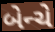
બેન્ચે